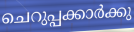
ചെറുപ്പക്കാർക്കു